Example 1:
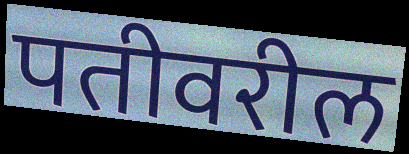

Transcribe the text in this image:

पतीवरील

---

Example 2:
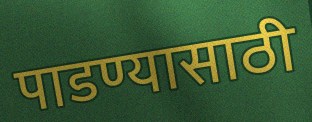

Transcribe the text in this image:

पाडण्यासाठी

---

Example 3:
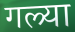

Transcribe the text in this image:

गल्या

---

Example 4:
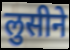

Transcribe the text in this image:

लुसीने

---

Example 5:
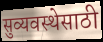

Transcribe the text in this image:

सुव्यवस्थेसाठी